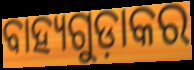
ବାହ୍ୟଗୁଡ଼ାକର